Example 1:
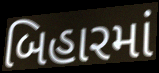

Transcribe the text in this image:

બિહારમાં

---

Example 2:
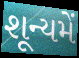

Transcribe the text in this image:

શૂન્યમેં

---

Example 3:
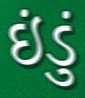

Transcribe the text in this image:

ઇંડું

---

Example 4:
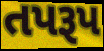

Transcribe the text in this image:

તપરૂપ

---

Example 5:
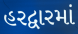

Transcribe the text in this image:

હરદ્વારમાં